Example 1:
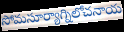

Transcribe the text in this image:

సోమసూర్యాగ్నిలోచనాయ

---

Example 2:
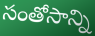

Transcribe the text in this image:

సంతోసాన్ని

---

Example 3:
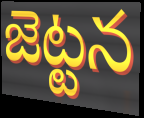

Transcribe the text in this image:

జెట్టన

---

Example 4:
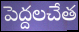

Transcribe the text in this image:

పెద్దలచేత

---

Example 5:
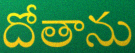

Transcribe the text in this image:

దోతాను